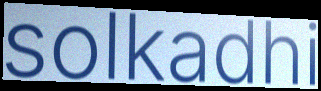
solkadhi